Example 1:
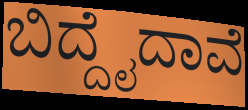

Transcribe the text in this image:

ಬಿದ್ದೈದಾವೆ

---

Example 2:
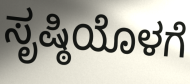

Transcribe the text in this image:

ಸೃಷ್ಠಿಯೊಳಗೆ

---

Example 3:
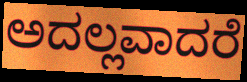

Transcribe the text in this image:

ಅದಲ್ಲವಾದರೆ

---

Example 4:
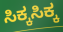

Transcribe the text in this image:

ಸಿಕ್ಕಸಿಕ್ಕ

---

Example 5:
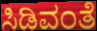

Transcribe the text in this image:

ಸಿಡಿವಂತೆ